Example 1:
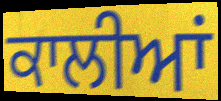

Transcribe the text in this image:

ਕਾਲੀਆਂ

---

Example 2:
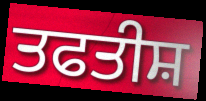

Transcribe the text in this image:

ਤਫਤੀਸ਼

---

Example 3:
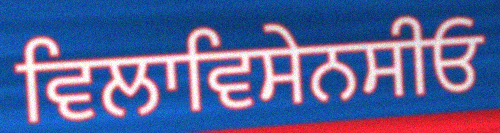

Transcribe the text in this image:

ਵਿਲਾਵਿਸੇਨਸੀਓ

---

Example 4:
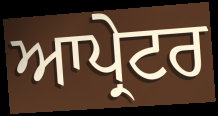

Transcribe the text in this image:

ਆਪ੍ਰੇਟਰ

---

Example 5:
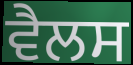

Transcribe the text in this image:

ਵੈਲਸ